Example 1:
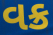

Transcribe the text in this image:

વક્ર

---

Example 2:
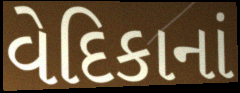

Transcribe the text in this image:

વેદિકાનાં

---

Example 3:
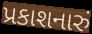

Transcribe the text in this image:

પ્રકાશનારું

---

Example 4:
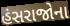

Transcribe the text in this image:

હંસરાજોના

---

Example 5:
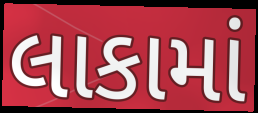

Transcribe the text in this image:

લાકામાં